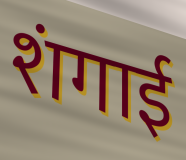
शंगाई